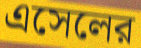
এসেলের